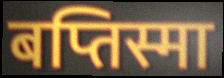
बप्तिस्मा